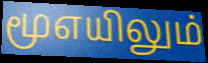
மூஎயிலும்